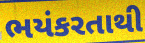
ભયંકરતાથી